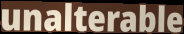
unalterable